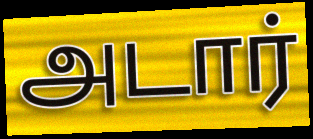
அடார்